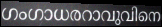
ഗംഗാധരറാവുവിനെ